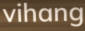
vihang